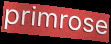
primrose